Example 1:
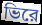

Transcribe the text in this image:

ভিরে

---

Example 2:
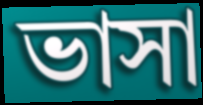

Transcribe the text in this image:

ভাসা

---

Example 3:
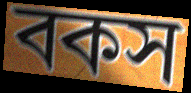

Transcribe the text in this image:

বকস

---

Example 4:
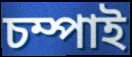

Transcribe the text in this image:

চম্পাই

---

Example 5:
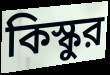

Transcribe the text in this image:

কিস্কুর